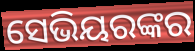
ସେଭିୟରଙ୍କର